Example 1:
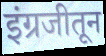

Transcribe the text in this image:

इंग्रजीतून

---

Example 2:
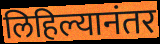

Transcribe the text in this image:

लिहिल्यानंतर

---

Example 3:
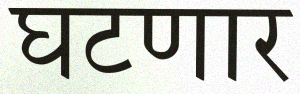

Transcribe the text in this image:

घटणार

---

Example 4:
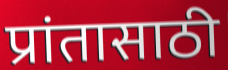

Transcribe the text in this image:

प्रांतासाठी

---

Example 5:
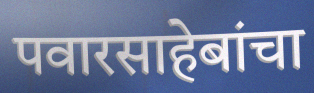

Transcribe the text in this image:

पवारसाहेबांचा